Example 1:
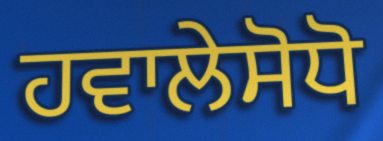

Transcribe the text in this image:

ਹਵਾਲੇਸੋਧੋ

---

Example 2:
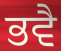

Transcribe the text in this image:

ਭਵੈ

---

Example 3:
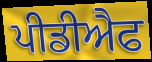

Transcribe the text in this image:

ਪੀਡੀਐਫ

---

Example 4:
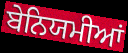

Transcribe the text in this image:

ਬੇਨਿਯਮੀਆਂ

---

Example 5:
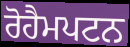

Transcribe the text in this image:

ਰੋਹੈਮਪਟਨ